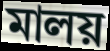
মালয়